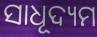
ସାଧୂଦ୍ୟମ